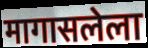
मागासलेला